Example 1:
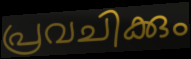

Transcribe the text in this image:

പ്രവചിക്കും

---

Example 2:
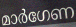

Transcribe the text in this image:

മാർഗേണ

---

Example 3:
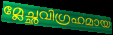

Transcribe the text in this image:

മ്ലേച്ഛവിഗ്രഹമായ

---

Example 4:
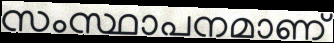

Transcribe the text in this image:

സംസ്ഥാപനമാണ്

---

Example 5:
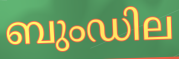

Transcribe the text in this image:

ബുംഡില